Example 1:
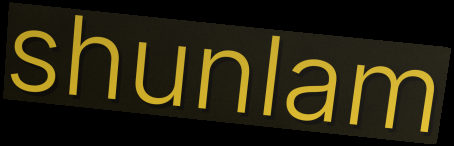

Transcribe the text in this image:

shunlam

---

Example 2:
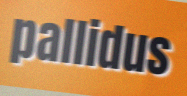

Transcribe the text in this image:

pallidus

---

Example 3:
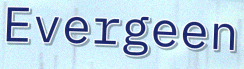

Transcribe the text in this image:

Evergeen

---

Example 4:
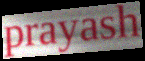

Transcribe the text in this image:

prayash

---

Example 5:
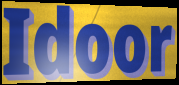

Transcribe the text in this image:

Idoor